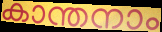
കാന്തനാം